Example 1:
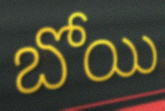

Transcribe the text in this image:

బోయి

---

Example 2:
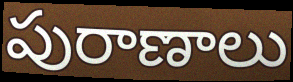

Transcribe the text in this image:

పురాణాలు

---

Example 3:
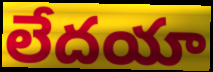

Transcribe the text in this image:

లేదయా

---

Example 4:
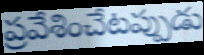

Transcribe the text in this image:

ప్రవేశించేటప్పుడు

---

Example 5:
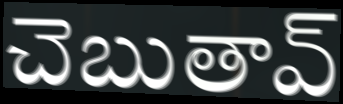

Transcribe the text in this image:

చెబుతావ్